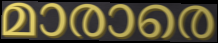
മാരാരെ